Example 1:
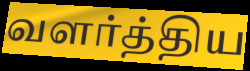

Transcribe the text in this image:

வளர்த்திய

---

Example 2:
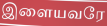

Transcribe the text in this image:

இளையவரே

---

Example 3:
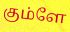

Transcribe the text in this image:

கும்ளே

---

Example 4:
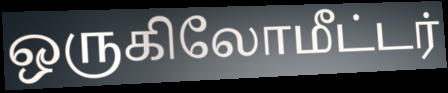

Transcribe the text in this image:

ஒருகிலோமீட்டர்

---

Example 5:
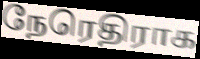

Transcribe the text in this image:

நேரெதிராக